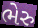
ભેરુ